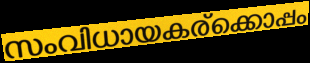
സംവിധായകര്ക്കൊപ്പം